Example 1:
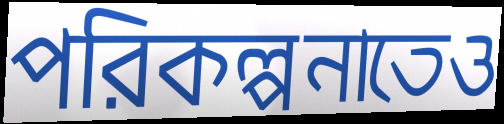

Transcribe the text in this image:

পরিকল্পনাতেও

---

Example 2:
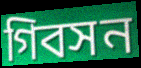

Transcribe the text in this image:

গিবসন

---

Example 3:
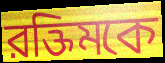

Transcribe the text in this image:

রক্তিমকে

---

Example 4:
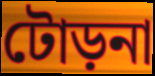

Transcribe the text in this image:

টোড়না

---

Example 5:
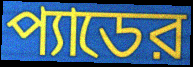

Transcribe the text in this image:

প্যাডের